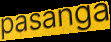
pasanga